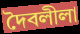
দৈবলীলা